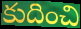
కుదించి